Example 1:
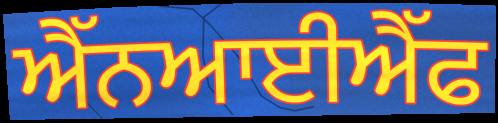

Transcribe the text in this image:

ਐੱਨਆਈਐੱਫ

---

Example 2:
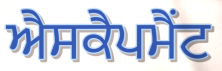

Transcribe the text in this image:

ਐਸਕੈਪਮੈਂਟ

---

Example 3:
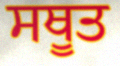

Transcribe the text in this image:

ਸਥੂਤ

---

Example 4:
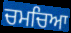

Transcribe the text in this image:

ਚਮਚਿਆ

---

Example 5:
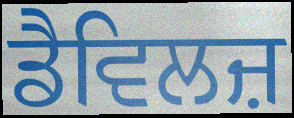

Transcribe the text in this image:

ਡੈਵਿਲਜ਼